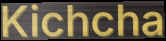
Kichcha